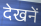
देखनें